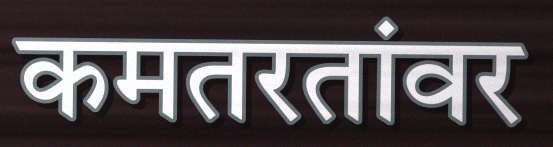
कमतरतांवर